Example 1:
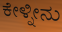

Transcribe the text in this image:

ಕೇಳ್ನೀನು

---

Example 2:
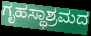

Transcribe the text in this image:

ಗೃಹಸ್ಥಾಶ್ರಮದ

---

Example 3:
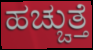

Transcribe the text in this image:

ಹಚ್ಚುತ್ತೆ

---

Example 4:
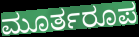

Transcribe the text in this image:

ಮೂರ್ತರೂಪ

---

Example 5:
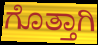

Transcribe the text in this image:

ಗೊತ್ತಾಗಿ